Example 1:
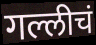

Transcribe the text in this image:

गल्लीचं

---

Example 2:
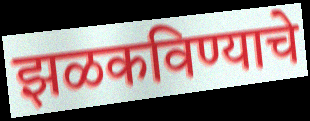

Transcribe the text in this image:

झळकविण्याचे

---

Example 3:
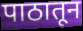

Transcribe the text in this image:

पाठातून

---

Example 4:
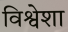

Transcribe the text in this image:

विश्वेशा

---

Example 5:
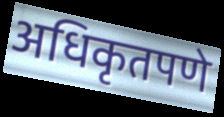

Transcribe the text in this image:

अधिकृतपणे